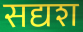
सद्यश